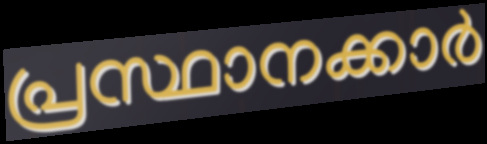
പ്രസ്ഥാനക്കാർ